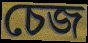
চেজ